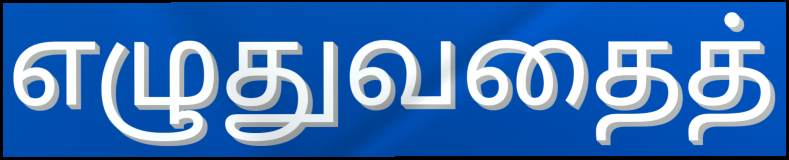
எழுதுவதைத்